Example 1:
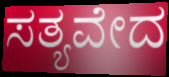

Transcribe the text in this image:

ಸತ್ಯವೇದ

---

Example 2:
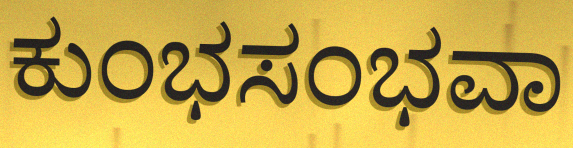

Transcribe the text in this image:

ಕುಂಭಸಂಭವಾ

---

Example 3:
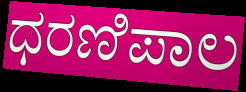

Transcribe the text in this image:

ಧರಣಿಪಾಲ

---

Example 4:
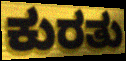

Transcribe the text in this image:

ಕುರತು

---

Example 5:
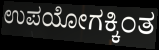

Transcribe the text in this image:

ಉಪಯೋಗಕ್ಕಿಂತ